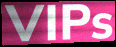
VIPs